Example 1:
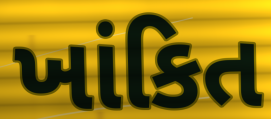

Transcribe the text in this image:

ખાંકિત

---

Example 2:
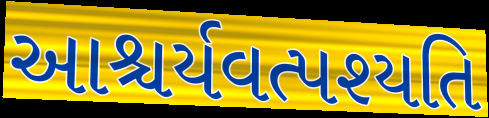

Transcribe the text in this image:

આશ્ચર્યવત્પશ્યતિ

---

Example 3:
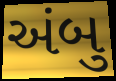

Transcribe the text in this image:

અંબુ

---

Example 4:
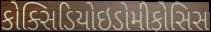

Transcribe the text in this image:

કોક્સિડિયોઇડોમીકોસિસ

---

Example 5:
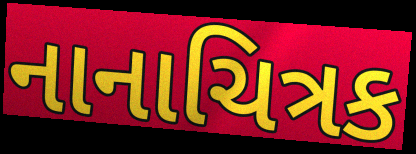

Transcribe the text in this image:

નાનાચિત્રક